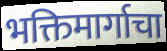
भक्तिमार्गाचा